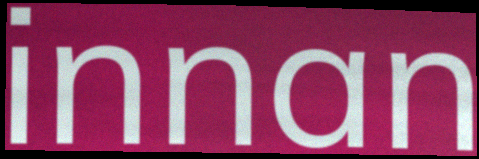
innan